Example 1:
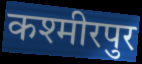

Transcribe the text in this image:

कश्मीरपुर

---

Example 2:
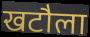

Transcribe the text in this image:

खटौला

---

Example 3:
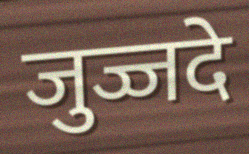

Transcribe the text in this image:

जुज्जदे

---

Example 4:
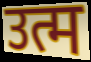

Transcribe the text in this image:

उत्म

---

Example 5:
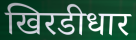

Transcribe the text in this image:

खिरडीधार